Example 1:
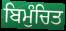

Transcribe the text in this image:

ਬਿਮੁੰਚਿਤ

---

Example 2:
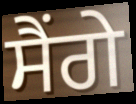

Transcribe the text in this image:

ਸੈਂਗੇ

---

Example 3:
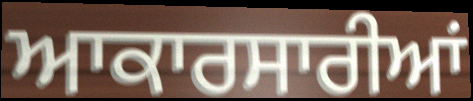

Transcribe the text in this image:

ਆਕਾਰਸਾਰੀਆਂ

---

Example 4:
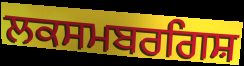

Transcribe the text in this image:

ਲਕਸਮਬਰਗਿਸ਼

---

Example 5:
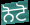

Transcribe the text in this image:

ਨੋਟੋ